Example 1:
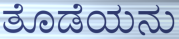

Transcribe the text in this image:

ತೊಡೆಯನು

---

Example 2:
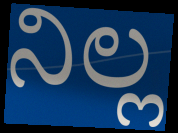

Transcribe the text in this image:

ನಿಲ್ಲ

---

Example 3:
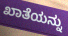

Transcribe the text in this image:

ಖಾತೆಯನ್ನು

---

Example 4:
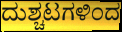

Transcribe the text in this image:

ದುಶ್ಚಟಗಳಿಂದ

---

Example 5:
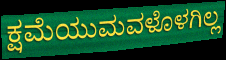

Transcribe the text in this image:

ಕ್ಷಮೆಯುಮವಳೊಳಗಿಲ್ಲ